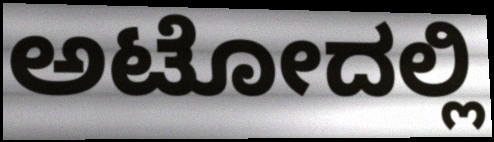
ಅಟೋದಲ್ಲಿ